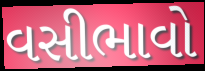
વસીભાવો